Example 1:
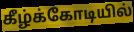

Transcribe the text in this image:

கீழ்க்கோடியில்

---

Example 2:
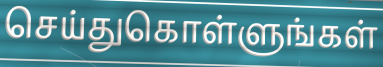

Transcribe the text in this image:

செய்துகொள்ளுங்கள்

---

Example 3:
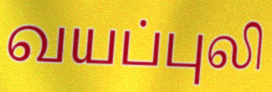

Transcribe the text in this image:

வயப்புலி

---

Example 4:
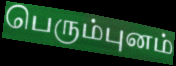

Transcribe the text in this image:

பெரும்புனம்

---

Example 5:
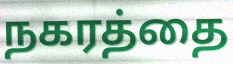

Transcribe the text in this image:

நகரத்தை